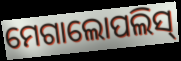
ମେଗାଲୋପଲିସ୍